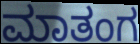
ಮಾತಂಗ